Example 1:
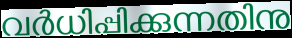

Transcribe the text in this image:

വർധിപ്പിക്കുന്നതിനു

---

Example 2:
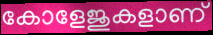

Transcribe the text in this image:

കോളേജുകളാണ്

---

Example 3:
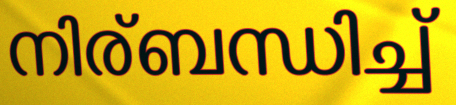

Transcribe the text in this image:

നിര്ബന്ധിച്ച്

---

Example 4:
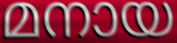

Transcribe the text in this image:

മനായ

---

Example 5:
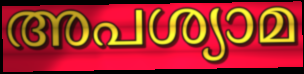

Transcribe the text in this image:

അപശ്യാമ